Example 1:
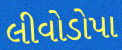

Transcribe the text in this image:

લીવોડોપા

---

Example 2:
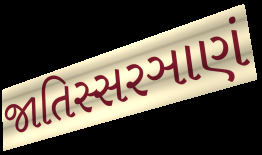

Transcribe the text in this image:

જાતિસ્સરઞાણં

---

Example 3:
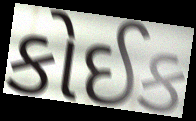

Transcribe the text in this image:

કોઈક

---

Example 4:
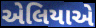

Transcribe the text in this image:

એલિયાએ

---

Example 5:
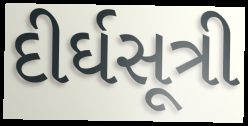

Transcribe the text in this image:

દીર્ઘસૂત્રી